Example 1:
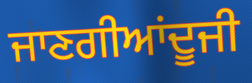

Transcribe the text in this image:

ਜਾਣਗੀਆਂਦੂਜੀ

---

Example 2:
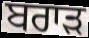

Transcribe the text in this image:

ਬਰਾਡ਼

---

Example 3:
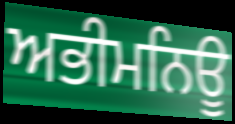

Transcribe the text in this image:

ਅਭੀਮਨਿਊ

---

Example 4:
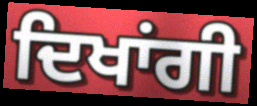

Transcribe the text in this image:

ਦਿਖਾਂਗੀ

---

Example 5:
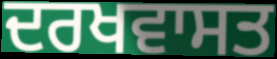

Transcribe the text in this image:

ਦਰਖਵਾਸਤ